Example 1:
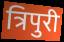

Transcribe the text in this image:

त्रिपुरी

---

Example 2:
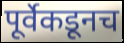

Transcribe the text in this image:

पूर्वेकडूनच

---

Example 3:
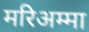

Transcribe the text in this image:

मरिअम्मा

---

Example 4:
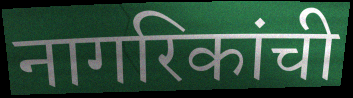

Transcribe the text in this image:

नागरिकांची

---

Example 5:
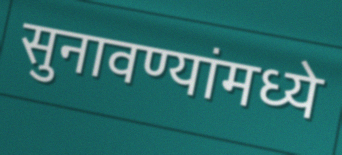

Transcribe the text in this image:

सुनावण्यांमध्ये